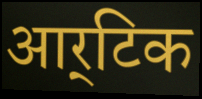
आर्टिक